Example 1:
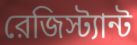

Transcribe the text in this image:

রেজিস্ট্যান্ট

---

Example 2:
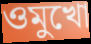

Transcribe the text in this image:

ওমুখো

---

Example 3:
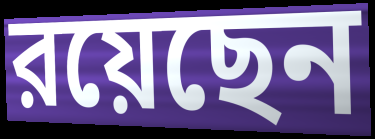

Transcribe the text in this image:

রয়েছেন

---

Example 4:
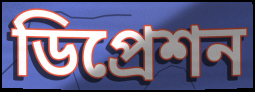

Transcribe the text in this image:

ডিপ্রেশন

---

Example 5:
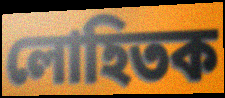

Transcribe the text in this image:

লোহিতক